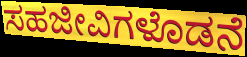
ಸಹಜೀವಿಗಳೊಡನೆ